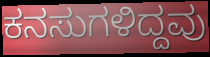
ಕನಸುಗಳಿದ್ದವು